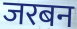
जरबन